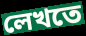
লেখতে